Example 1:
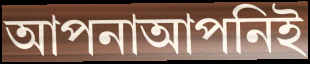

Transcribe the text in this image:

আপনাআপনিই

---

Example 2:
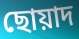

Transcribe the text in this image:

ছোয়াদ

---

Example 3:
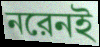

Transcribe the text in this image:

নরেনই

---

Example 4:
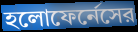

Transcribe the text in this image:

হলোফের্নেসের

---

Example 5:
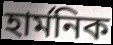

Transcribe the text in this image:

হার্মনিক